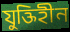
যুক্তিহীন